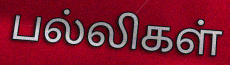
பல்லிகள்